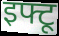
इफ्टू